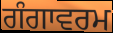
ਗੰਗਾਵਰਮ